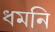
ধমনি